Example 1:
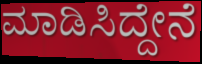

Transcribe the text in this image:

ಮಾಡಿಸಿದ್ದೇನೆ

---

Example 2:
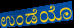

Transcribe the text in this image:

ಉಂಡೆಯೊ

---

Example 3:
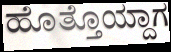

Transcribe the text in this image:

ಹೊತ್ತೊಯ್ದಾಗ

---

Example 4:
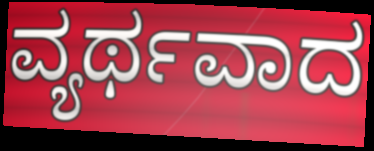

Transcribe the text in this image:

ವ್ಯರ್ಥವಾದ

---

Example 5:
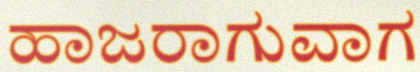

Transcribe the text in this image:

ಹಾಜರಾಗುವಾಗ